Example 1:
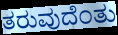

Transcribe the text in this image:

ತರುವುದೆಂತು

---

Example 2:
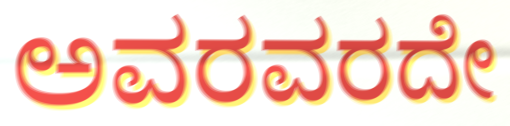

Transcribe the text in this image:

ಅವರವರದೇ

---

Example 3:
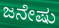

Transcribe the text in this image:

ಜನೇಷು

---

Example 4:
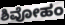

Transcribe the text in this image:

ಶಿವೋಹಂ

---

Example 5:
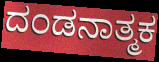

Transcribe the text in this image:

ದಂಡನಾತ್ಮಕ